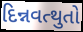
દિન્નવત્થુતો